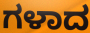
ಗಳಾದ